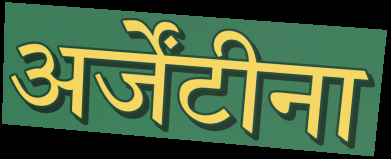
अर्जेंटीना